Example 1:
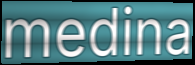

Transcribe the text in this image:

medina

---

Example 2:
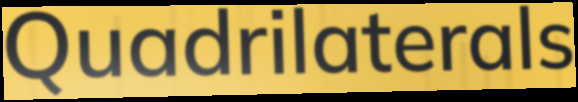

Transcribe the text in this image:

Quadrilaterals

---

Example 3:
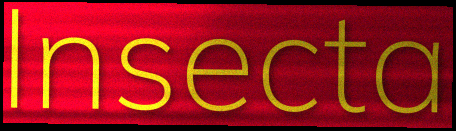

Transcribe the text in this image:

Insecta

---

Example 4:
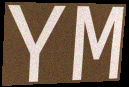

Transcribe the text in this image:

YM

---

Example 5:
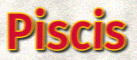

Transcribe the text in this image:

Piscis